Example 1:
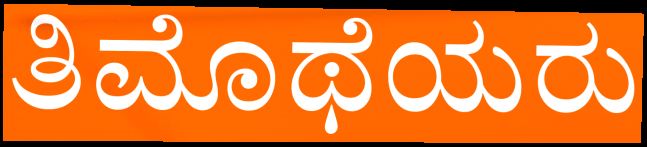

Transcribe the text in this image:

ತಿಮೊಥೆಯರು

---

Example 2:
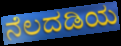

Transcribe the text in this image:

ನೆಲದಡಿಯ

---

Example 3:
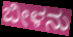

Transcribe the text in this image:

ಬೀಳನು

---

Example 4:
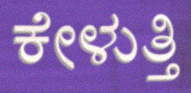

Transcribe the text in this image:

ಕೇಳುತ್ತಿ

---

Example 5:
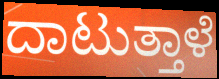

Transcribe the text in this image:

ದಾಟುತ್ತಾಳೆ